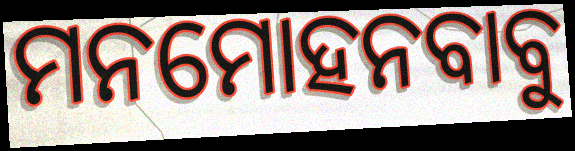
ମନମୋହନବାବୁ